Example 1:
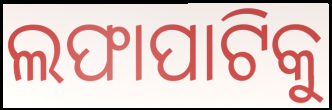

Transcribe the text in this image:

ଲଫାପାଟିକୁ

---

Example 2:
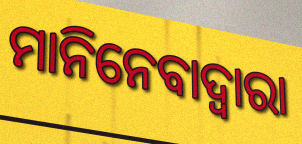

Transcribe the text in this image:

ମାନିନେବାଦ୍ୱାରା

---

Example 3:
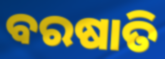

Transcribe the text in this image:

ବରଷାତି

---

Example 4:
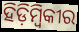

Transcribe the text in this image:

ହିଡ଼ିମ୍ବିକୀର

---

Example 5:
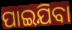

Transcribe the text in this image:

ପାଇଯିବା